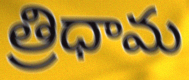
త్రిధామ